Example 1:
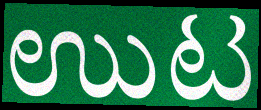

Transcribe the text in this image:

ಉುಟ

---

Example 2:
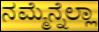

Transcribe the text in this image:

ನಮ್ಮೆನ್ನೆಲ್ಲಾ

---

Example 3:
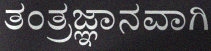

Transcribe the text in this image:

ತಂತ್ರಜ್ಞಾನವಾಗಿ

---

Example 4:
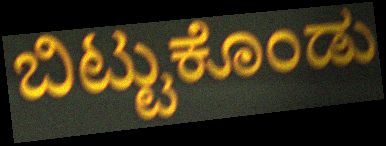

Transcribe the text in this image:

ಬಿಟ್ಟುಕೊಂಡು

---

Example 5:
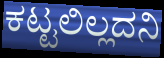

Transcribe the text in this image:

ಕಟ್ಟಲಿಲ್ಲದನಿ